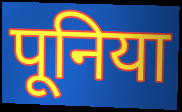
पूनिया